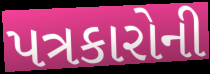
પત્રકારોની